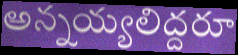
అన్నయ్యలిద్దరూ